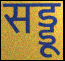
सड्डू